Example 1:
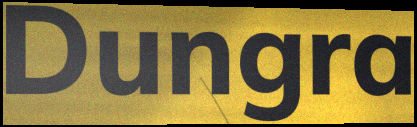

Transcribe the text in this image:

Dungra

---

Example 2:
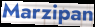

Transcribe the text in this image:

Marzipan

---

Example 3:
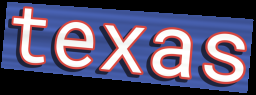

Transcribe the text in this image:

texas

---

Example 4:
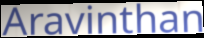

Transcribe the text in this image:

Aravinthan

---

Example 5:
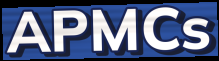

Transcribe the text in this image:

APMCs